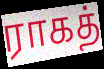
ராகத்